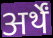
अर्थें